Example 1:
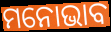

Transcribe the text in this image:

ମନୋଭାବ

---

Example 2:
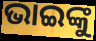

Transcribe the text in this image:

ଭାଇଙ୍କୁ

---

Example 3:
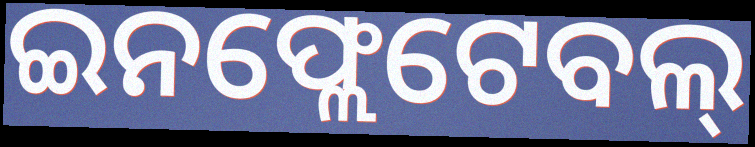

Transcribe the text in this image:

ଇନଫ୍ଲେଟେବଲ୍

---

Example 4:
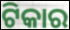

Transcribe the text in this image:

ଟିକାର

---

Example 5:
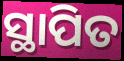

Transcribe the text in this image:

ସ୍ଥାପିତ